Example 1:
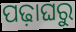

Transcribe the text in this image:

ପଢ଼ାଘରୁ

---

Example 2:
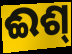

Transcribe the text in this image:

ଈଶ୍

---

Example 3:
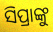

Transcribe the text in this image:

ସିପ୍ରାଙ୍କୁ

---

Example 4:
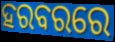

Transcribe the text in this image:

ହରବରରେ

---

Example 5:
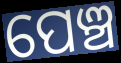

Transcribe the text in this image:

ପେଞ୍ଚ